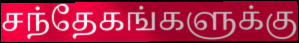
சந்தேகங்களுக்கு